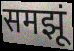
समझूं